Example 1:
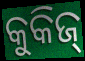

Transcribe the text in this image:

କୁକିଜ୍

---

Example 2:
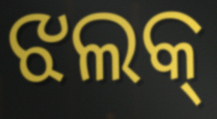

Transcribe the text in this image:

ଝଲକ୍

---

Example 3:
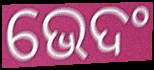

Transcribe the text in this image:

ଭେଦଂ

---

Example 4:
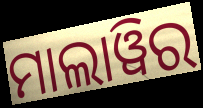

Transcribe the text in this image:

ମାଲାୱିର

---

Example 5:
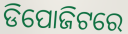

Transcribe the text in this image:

ଡିପୋଜିଟରେ